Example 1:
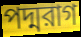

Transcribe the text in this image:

পদ্মরাগ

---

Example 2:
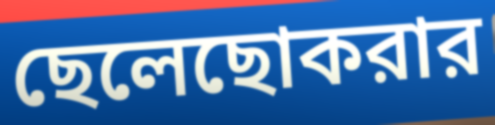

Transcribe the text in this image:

ছেলেছোকরার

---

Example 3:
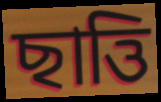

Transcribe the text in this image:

ছাত্তি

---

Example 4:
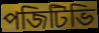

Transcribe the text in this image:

পজিটিভি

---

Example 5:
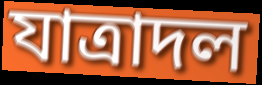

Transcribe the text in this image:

যাত্রাদল